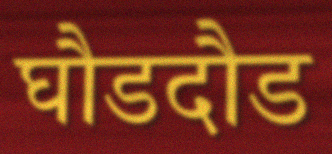
घौडदौड